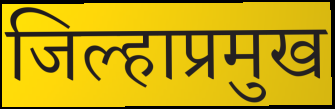
जिल्हाप्रमुख